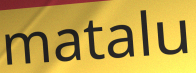
matalu